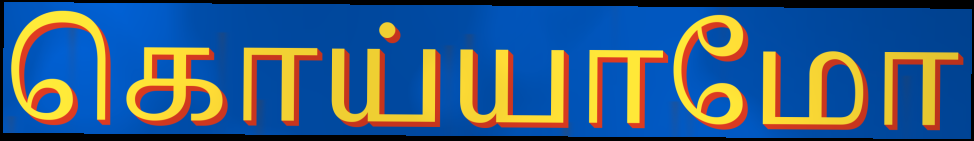
கொய்யாமோ